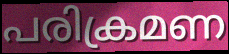
പരിക്രമണ